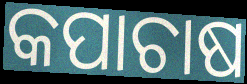
କପାଚାଷ